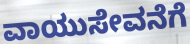
ವಾಯುಸೇವನೆಗೆ